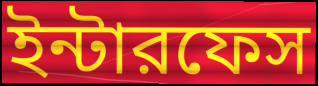
ইন্টারফেস